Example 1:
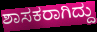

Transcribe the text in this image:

ಶಾಸಕರಾಗಿದ್ದು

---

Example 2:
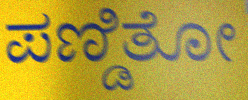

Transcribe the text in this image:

ಪಣ್ಡಿತೋ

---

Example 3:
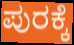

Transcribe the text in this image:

ಪುರಕ್ಕೆ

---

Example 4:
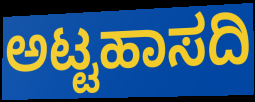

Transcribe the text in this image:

ಅಟ್ಟಹಾಸದಿ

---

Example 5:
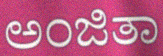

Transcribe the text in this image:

ಅಂಜಿತಾ